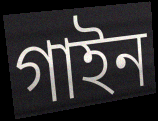
গাইন